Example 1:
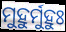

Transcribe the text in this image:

ମୁହୁର୍ମୁହୁଃ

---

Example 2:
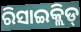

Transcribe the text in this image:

ରିସାଇକ୍ଲିଡ୍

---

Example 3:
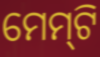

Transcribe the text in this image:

ମେମ୍‍ଟି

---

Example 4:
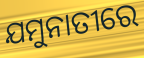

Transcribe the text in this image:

ଯମୁନାତୀରେ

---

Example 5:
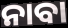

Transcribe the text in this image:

ନାବା